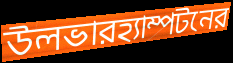
উলভারহ্যাম্পটনের